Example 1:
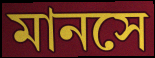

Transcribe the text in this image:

মানসে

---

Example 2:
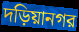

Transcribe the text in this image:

দড়িয়ানগর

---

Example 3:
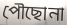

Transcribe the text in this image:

পৌছোনা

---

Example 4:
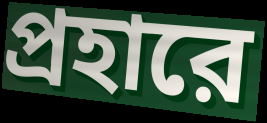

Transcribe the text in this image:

প্রহারে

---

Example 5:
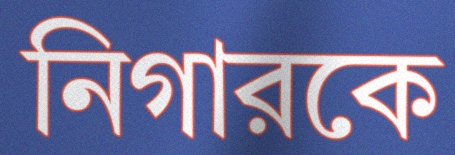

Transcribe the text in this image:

নিগারকে